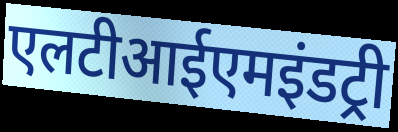
एलटीआईएमइंडट्री